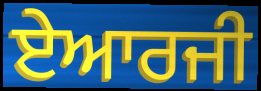
ਏਆਰਜੀ